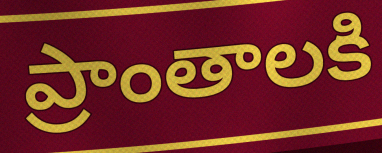
ప్రాంతాలకి